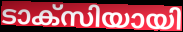
ടാക്സിയായി